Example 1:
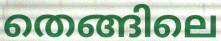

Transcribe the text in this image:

തെങ്ങിലെ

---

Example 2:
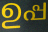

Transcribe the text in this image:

ഉപ്പ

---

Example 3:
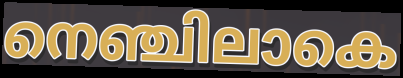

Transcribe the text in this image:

നെഞ്ചിലാകെ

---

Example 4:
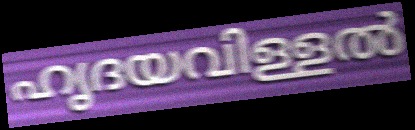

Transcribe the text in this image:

ഹൃദയവിള്ളൽ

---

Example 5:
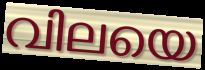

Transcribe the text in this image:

വിലയെ